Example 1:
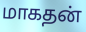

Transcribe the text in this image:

மாகதன்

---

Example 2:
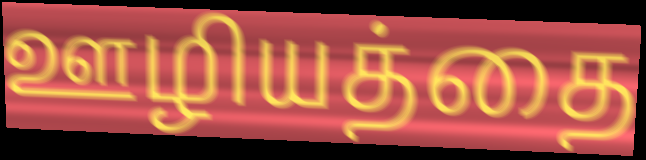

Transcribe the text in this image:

ஊழியத்தை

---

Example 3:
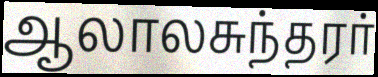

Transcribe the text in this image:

ஆலாலசுந்தரர்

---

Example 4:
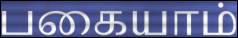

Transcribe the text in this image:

பகையாம்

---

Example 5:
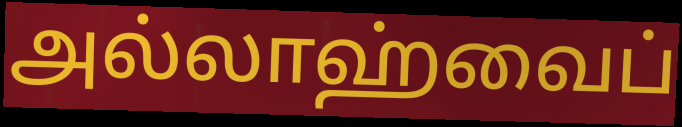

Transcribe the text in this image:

அல்லாஹ்வைப்